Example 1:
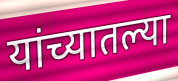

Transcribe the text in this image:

यांच्यातल्या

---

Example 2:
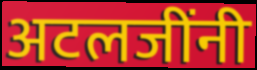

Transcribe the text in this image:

अटलजींनी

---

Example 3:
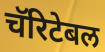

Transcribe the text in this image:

चॅरिटेबल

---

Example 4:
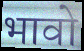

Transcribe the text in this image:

भावो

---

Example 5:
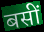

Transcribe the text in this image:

बसीं